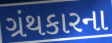
ગ્રંથકારના